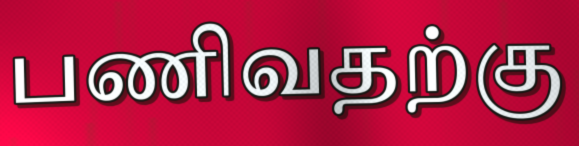
பணிவதற்கு